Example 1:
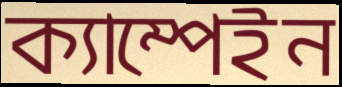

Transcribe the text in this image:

ক্যাম্পেইন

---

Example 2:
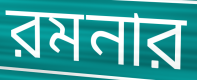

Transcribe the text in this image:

রমনার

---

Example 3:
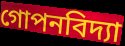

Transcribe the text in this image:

গোপনবিদ্যা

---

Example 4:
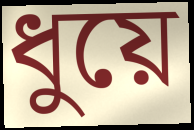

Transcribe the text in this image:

ধুয়ে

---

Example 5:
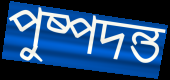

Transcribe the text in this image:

পুষ্পদন্ত